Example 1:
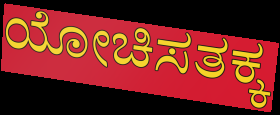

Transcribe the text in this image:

ಯೋಚಿಸತಕ್ಕ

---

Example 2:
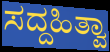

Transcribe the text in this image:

ಸದ್ದಹಿತ್ವಾ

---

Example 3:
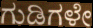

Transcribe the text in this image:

ಗುಡಿಗಳೇ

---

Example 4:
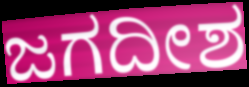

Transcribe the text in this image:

ಜಗದೀಶ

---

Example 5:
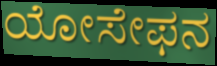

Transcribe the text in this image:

ಯೋಸೇಫನ